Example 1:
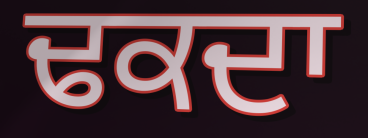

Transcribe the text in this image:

ਢਕਦਾ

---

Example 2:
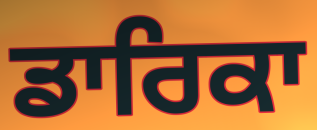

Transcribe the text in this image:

ਡਾਰਿਕਾ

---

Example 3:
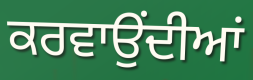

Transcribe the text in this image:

ਕਰਵਾਉਂਦੀਆਂ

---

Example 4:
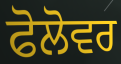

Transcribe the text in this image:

ਫੋਲੋਵਰ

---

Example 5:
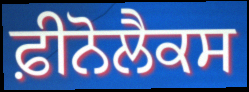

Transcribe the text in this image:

ਫ਼ੀਨੋਲੈਕਸ